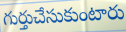
గుర్తుచేసుకుంటారు